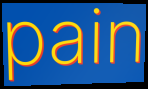
pain